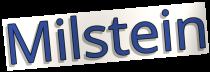
Milstein